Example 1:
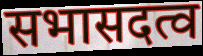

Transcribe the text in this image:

सभासदत्व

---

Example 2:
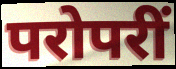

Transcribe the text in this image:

परोपरीं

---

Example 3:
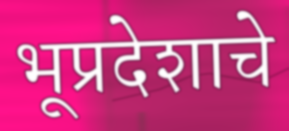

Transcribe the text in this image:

भूप्रदेशाचे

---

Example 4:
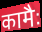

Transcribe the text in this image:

कामैः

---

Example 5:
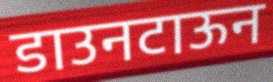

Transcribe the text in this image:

डाउनटाऊन